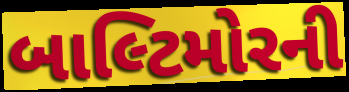
બાલ્ટિમોરની